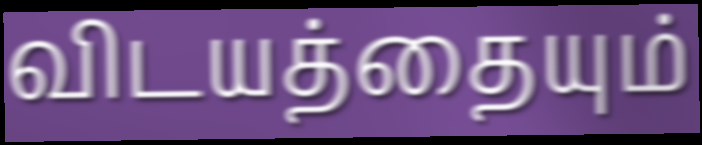
விடயத்தையும்